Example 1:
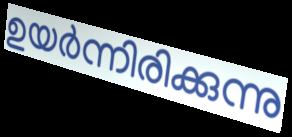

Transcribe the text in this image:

ഉയർന്നിരിക്കുന്നു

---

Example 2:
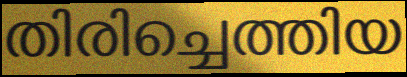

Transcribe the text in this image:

തിരിച്ചെത്തിയ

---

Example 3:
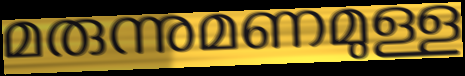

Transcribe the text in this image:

മരുന്നുമണമുള്ള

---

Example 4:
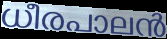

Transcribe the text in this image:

ധീരപാലൻ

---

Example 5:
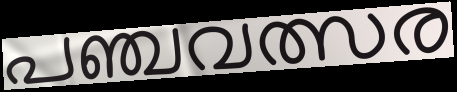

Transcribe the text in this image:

പഞ്ചവത്സര